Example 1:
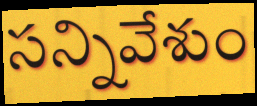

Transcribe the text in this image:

సన్నివేశుం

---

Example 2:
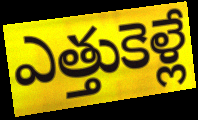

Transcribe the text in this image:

ఎత్తుకెళ్లే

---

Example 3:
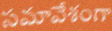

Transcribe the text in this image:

సమావేశంగా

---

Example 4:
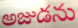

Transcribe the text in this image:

అజుడను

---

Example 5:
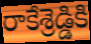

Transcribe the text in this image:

రాకేశ్రెడ్డికి